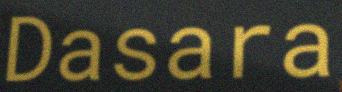
Dasara